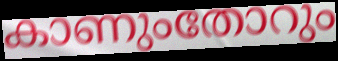
കാണുംതോറും